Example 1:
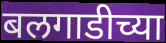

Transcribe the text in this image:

बलगाडीच्या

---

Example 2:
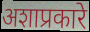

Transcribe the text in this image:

अशाप्रकारे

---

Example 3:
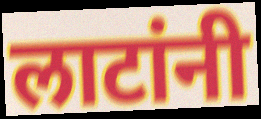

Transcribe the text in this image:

लाटांनी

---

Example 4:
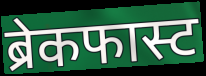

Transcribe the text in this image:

ब्रेकफास्ट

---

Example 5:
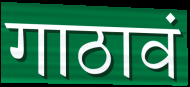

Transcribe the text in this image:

गाठावं